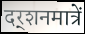
दर्शनमात्रें